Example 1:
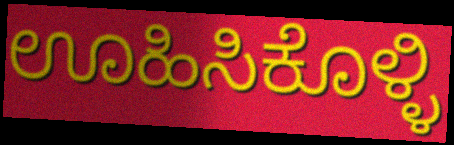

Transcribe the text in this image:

ಊಹಿಸಿಕೊಳ್ಳಿ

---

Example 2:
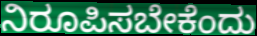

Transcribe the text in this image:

ನಿರೂಪಿಸಬೇಕೆಂದು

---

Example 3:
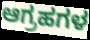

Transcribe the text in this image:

ಆಗ್ರಹಗಳ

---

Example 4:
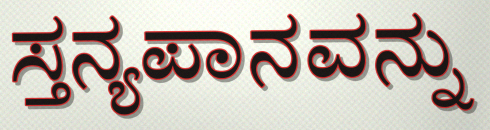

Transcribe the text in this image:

ಸ್ತನ್ಯಪಾನವನ್ನು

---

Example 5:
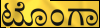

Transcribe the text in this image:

ಟೊಂಗಾ